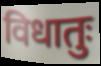
विधातुः